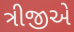
ત્રીજીએ